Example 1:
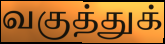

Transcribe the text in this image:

வகுத்துக்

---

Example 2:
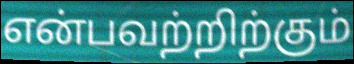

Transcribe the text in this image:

என்பவற்றிற்கும்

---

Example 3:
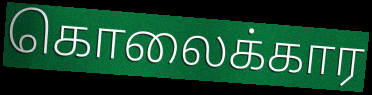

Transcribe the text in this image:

கொலைக்கார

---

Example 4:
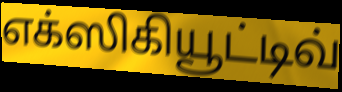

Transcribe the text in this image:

எக்ஸிகியூட்டிவ்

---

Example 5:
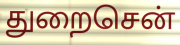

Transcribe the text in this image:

துறைசென்